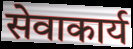
सेवाकार्य